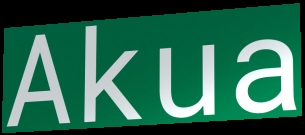
Akua